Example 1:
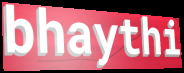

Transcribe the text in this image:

bhaythi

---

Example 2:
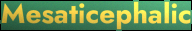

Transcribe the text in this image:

Mesaticephalic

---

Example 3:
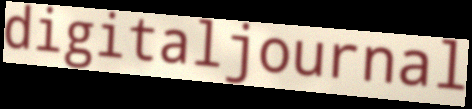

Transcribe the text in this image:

digitaljournal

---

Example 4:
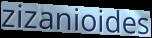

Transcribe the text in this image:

zizanioides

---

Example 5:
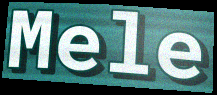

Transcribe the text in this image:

Mele